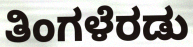
ತಿಂಗಳೆರಡು